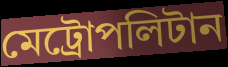
মেট্ৰোপলিটান